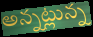
అన్నట్లున్న